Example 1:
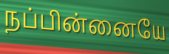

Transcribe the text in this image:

நப்பின்னையே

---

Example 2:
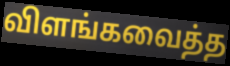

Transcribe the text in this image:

விளங்கவைத்த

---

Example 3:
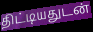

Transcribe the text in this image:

திட்டியதுடன்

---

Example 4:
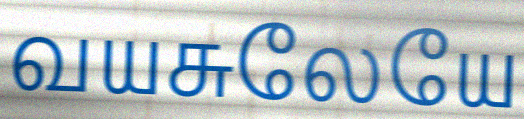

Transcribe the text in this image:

வயசுலேயே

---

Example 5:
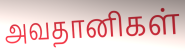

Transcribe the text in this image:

அவதானிகள்